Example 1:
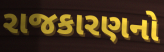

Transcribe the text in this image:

રાજકારણનો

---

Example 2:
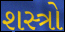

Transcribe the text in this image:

શસ્‍ત્રો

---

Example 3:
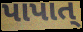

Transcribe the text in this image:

પાપાત્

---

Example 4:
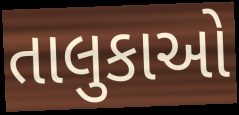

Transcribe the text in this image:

તાલુકાઓ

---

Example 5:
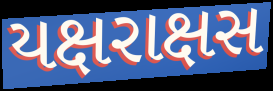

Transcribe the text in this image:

યક્ષરાક્ષસ